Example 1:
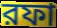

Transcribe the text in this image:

রফা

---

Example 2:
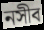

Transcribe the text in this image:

নসীব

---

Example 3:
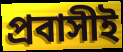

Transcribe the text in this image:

প্রবাসীই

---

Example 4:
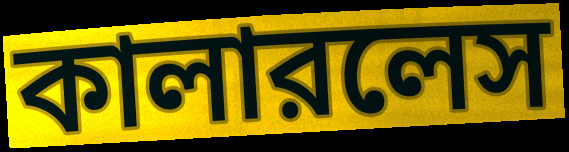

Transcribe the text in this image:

কালারলেস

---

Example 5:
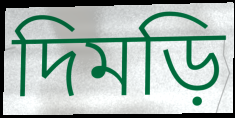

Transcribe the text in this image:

দিমড়ি